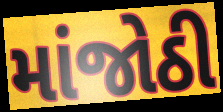
માંજોઠી